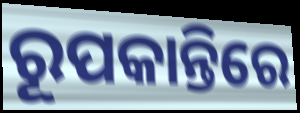
ରୂପକାନ୍ତିରେ